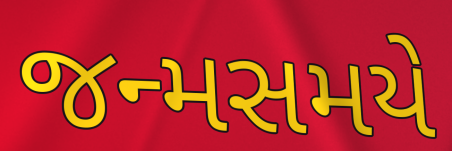
જન્મસમયે